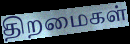
திறமைகள்